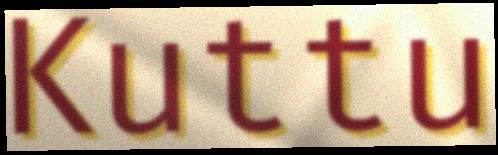
Kuttu